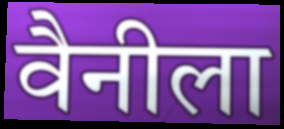
वैनीला